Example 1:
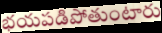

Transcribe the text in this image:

భయపడిపోతుంటారు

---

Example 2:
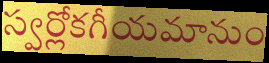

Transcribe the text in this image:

స్వర్లోకగీయమానుం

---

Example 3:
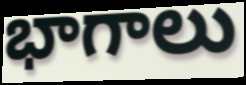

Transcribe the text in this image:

భాగాలు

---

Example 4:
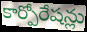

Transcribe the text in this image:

కార్పోరేషన్లు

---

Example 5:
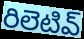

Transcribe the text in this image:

రిలెటివ్